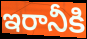
ఇరానీకి